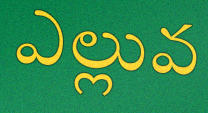
ఎల్లువ